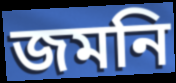
জমনি